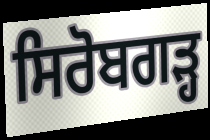
ਸਿਰੋਬਗੜ੍ਹ